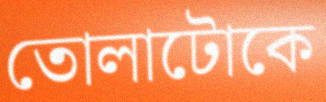
তোলাটোকে